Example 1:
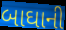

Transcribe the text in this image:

બાઘાની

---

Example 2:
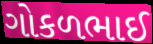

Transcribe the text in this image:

ગોકળભાઈ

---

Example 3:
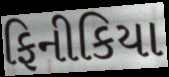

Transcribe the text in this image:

ફિનીકિયા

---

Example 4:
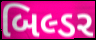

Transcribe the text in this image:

બિલ્ડર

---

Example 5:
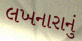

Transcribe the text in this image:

લખનારાનું